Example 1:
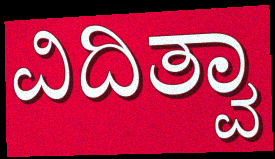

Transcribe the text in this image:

ವಿದಿತ್ವಾ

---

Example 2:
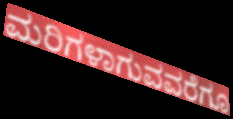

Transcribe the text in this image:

ಮರಿಗಳಾಗುವವರೆಗೂ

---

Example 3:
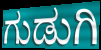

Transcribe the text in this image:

ಗುಡುಗಿ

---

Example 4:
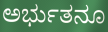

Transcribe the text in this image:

ಅರ್ಭುತನೂ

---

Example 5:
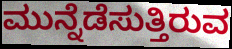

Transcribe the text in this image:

ಮುನ್ನೆಡೆಸುತ್ತಿರುವ